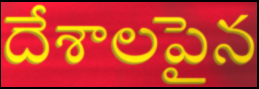
దేశాలపైన